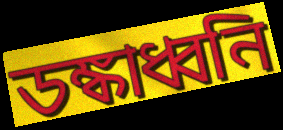
ডঙ্কাধ্বনি